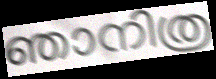
ഞാനിത്ര